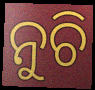
ନୁଚି